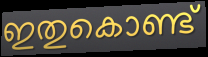
ഇതുകൊണ്ട്